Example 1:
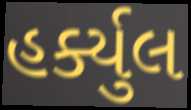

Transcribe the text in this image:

હર્ક્યુલ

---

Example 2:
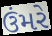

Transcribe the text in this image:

ઉંમરે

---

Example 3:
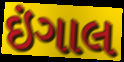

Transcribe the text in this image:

ઇંગાલ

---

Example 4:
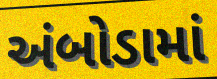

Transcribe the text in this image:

અંબોડામાં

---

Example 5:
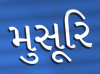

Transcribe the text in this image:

મુસૂરિ